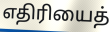
எதிரியைத்